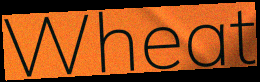
Wheat